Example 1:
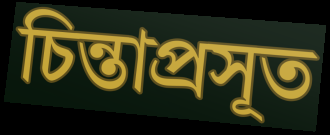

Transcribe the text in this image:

চিন্তাপ্রসূত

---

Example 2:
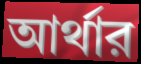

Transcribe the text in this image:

আর্থার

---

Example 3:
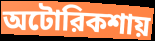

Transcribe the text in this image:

অটোরিকশায়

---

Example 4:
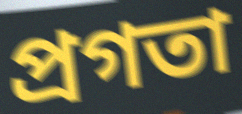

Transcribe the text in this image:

প্রগতা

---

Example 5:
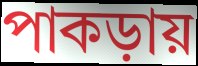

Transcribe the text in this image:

পাকড়ায়